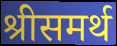
श्रीसमर्थ